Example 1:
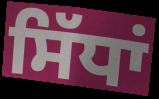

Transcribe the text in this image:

ਸਿੱਧਾਂ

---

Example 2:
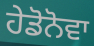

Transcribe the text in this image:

ਹੇਡੋਨੋਵਾ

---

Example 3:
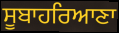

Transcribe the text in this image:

ਸੂਬਾਹਰਿਆਣਾ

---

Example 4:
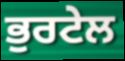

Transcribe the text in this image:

ਭੁਰਟੇਲ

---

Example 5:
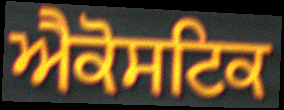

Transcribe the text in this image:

ਐਕੋਸਟਿਕ